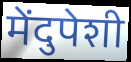
मेंदुपेशी